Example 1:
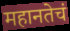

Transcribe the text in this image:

महानतेचं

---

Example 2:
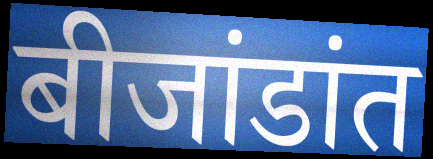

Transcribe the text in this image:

बीजांडांत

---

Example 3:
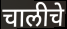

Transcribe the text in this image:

चालीचे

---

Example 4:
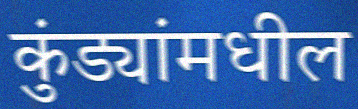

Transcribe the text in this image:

कुंड्यांमधील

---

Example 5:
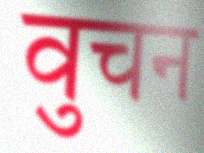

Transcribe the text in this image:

वुचन